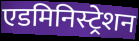
एडमिनिस्‍ट्रेशन